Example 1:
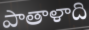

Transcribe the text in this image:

పాతాళాది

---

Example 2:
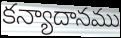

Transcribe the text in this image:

కన్యాదానము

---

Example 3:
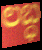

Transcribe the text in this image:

లబ్ధ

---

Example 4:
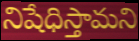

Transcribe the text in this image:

నిషేధిస్తామని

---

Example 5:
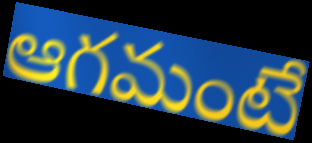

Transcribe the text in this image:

ఆగమంటే